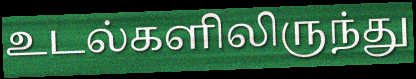
உடல்களிலிருந்து